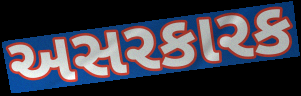
અસરકારક